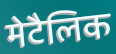
मेटैलिक